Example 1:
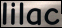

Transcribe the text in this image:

lilac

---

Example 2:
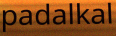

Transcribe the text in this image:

padalkal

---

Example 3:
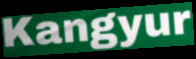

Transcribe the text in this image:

Kangyur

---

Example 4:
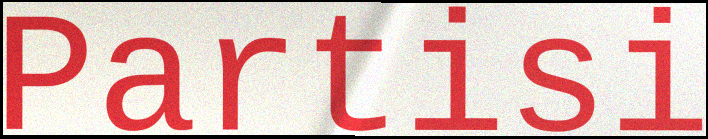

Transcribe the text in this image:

Partisi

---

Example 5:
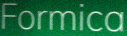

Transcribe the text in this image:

Formica